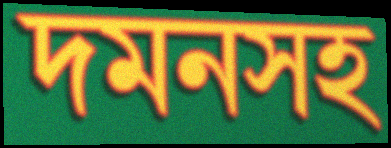
দমনসহ